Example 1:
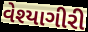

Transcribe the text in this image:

વેશ્યાગીરી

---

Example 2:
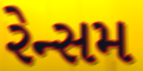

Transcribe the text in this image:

રેન્સમ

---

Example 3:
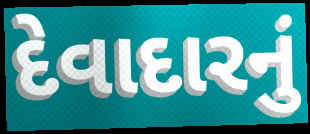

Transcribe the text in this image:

દેવાદારનું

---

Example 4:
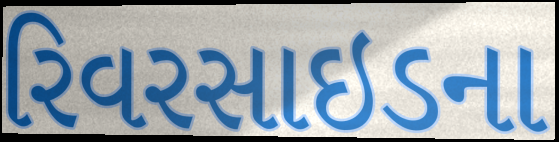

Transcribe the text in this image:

રિવરસાઇડના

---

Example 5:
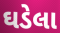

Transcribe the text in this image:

ઘડેલા